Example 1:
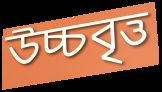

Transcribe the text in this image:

উচ্চবৃত্ত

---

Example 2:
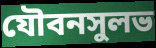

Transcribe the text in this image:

যৌবনসুলভ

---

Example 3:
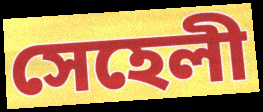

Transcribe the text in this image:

সেহেলী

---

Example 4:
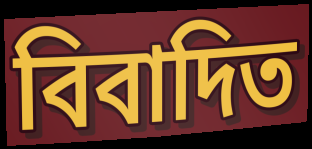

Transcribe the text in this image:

বিবাদিত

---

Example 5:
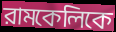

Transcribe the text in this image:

রামকেলিকে